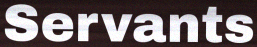
Servants